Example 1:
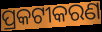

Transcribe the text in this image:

ପ୍ରକଟୀକରଣ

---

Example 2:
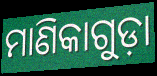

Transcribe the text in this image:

ମାଣିକାଗୁଡ଼ା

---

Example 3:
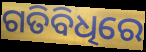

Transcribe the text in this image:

ଗତିବିଧିରେ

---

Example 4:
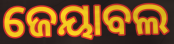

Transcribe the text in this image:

ଜେୟାବଲ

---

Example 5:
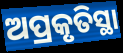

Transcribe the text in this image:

ଅପ୍ରକୃତିସ୍ଥା